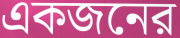
একজনের